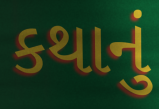
કથાનું